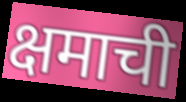
क्षमाची